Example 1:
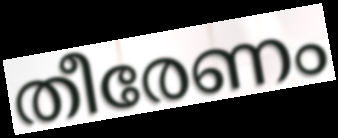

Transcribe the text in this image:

തീരേണം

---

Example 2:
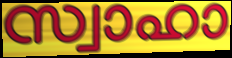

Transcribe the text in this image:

സ്വാഹാ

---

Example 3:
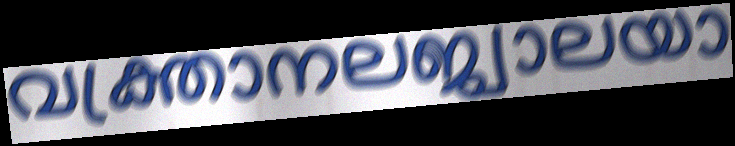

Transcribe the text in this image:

വക്ത്രാനലജ്വാലയാ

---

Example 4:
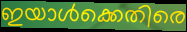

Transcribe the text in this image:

ഇയാൾക്കെതിരെ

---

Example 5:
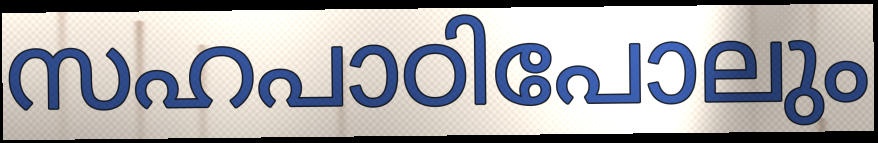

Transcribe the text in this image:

സഹപാഠിപോലും